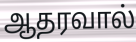
ஆதரவால்